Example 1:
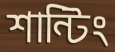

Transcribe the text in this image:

শান্টিং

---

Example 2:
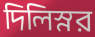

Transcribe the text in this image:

দিলিস্নর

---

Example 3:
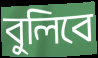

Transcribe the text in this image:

বুলিবে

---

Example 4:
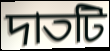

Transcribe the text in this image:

দাতটি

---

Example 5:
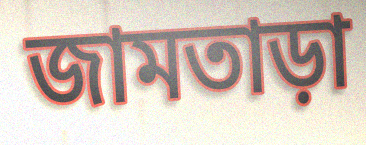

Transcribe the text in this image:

জামতাড়া